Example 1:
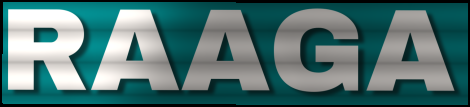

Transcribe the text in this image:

RAAGA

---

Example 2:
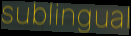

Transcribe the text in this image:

sublingual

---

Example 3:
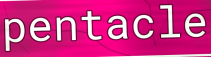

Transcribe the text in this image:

pentacle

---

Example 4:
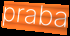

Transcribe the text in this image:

praba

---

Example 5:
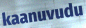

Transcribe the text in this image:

kaanuvudu